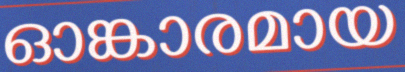
ഓങ്കാരമായ